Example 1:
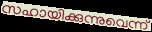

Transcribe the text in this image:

സഹായിക്കുന്നുവെന്ന്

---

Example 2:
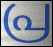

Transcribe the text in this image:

പ്ര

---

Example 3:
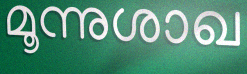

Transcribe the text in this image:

മൂന്നുശാഖ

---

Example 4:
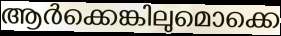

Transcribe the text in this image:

ആർക്കെങ്കിലുമൊക്കെ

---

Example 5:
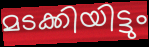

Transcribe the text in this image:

മടക്കിയിട്ടും